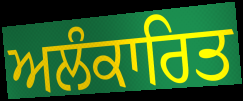
ਅਲੰਕਾਰਿਤ